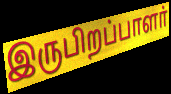
இருபிறப்பாளர்